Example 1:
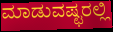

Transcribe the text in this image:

ಮಾಡುವಷ್ಟರಲ್ಲಿ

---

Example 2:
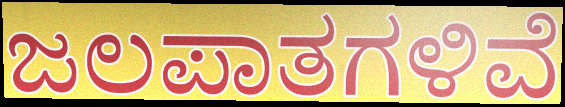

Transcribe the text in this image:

ಜಲಪಾತಗಳಿವೆ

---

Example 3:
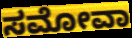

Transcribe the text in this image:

ಸಮೋವಾ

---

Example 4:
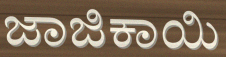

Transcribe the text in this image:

ಜಾಜಿಕಾಯಿ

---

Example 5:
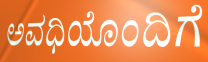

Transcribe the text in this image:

ಅವಧಿಯೊಂದಿಗೆ